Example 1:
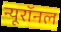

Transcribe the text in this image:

न्यूरॉनल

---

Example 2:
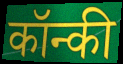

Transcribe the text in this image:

कॉन्की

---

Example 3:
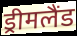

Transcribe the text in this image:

ड्रीमलैंड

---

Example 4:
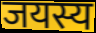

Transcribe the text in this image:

जयस्य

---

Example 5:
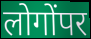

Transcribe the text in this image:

लोगोंपर